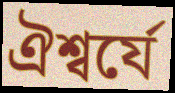
ঐশ্বর্যে